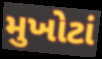
મુખોટાં